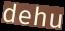
dehu